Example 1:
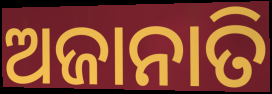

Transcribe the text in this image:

ଅଜାନାତି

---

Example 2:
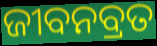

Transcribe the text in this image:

ଜୀବନବ୍ରତ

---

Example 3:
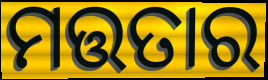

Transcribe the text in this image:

ମତ୍ତତାର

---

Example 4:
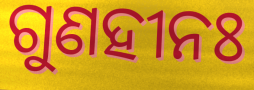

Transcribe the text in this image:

ଗୁଣହୀନଃ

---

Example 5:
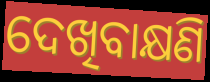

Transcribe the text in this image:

ଦେଖିବାକ୍ଷଣି